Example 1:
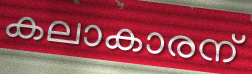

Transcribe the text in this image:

കലാകാരന്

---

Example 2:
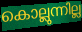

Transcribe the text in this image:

കൊല്ലുന്നില്ല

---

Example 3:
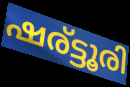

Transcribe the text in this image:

ഷര്ട്ടൂരി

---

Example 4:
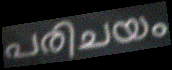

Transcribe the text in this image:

പരിചയം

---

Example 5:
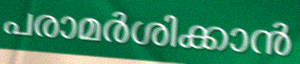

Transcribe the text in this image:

പരാമർശിക്കാൻ